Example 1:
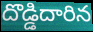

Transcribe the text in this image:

దొడ్డిదారిన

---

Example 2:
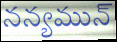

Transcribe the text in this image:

నన్యమున్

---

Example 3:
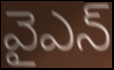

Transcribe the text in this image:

వైఎన్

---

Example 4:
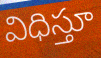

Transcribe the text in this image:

విధిస్తూ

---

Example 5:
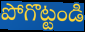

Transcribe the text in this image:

పోగొట్టండి